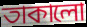
তাকালো